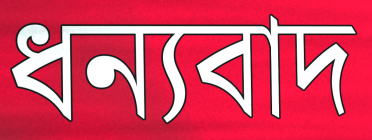
ধন্যবাদ